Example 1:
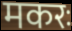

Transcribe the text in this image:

मकरः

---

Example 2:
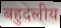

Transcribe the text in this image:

बहुदलीय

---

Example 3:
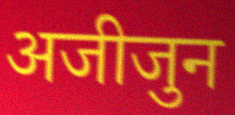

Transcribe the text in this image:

अजीजुन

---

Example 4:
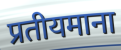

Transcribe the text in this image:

प्रतीयमाना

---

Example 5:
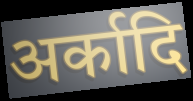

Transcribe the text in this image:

अर्कादि